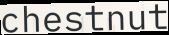
chestnut